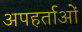
अपहर्ताओं